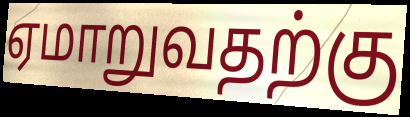
ஏமாறுவதற்கு